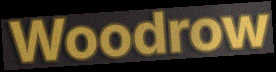
Woodrow